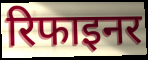
रिफाइनर